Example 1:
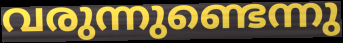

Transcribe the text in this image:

വരുന്നുണ്ടെന്നു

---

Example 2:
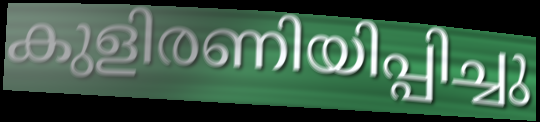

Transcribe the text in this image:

കുളിരണിയിപ്പിച്ചു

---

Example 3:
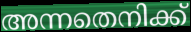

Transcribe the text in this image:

അന്നതെനിക്ക്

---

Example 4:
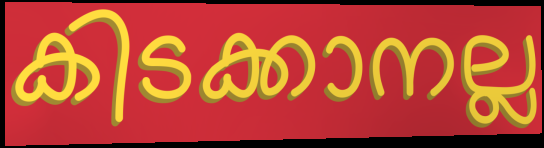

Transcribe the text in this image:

കിടക്കാനല്ല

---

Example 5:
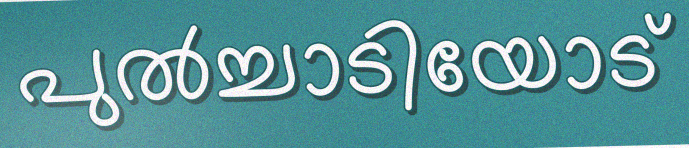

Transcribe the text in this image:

പുൽച്ചാടിയോട്